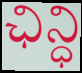
ఛిన్ధి